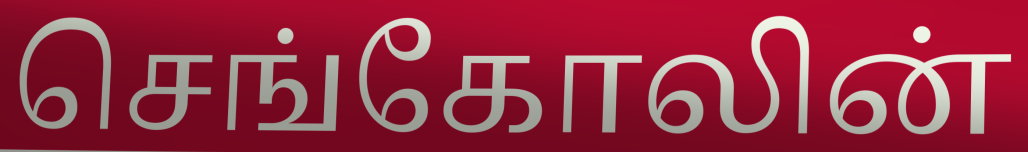
செங்கோலின்